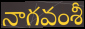
నాగవంశీ